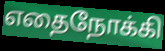
எதைநோக்கி